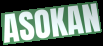
ASOKAN